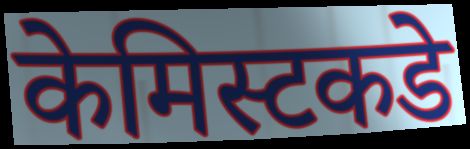
केमिस्टकडे